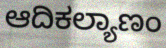
ಆದಿಕಲ್ಯಾಣಂ